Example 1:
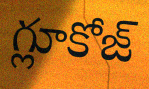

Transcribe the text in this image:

గ్లూకోజ్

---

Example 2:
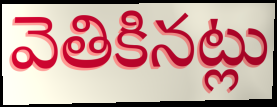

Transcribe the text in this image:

వెతికినట్లు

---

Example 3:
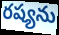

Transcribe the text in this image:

రష్యను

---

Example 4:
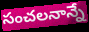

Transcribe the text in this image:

సంచలనాన్నే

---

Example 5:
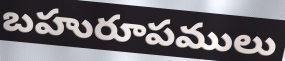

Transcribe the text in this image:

బహురూపములు